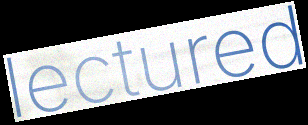
lectured